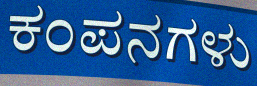
ಕಂಪನಗಳು